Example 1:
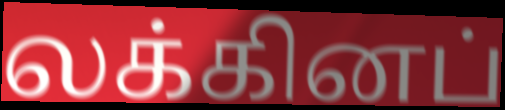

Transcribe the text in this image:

லக்கினப்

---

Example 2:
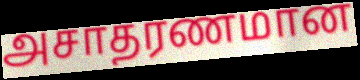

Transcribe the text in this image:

அசாதரணமான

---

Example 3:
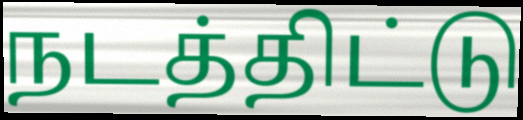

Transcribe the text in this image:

நடத்திட்டு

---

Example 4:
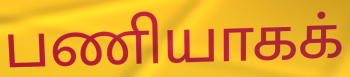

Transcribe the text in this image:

பணியாகக்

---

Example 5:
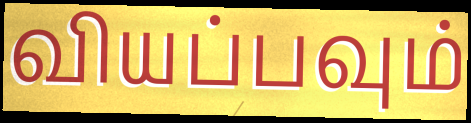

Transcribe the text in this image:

வியப்பவும்